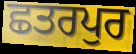
ਛਤਰਪੁਰ